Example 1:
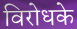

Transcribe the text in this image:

विरोधके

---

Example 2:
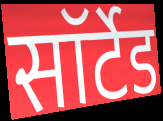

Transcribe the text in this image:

सॉर्टेड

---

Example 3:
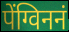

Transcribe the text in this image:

पेंग्विननं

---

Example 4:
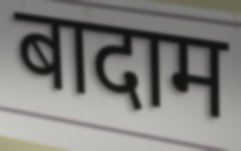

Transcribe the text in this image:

बादाम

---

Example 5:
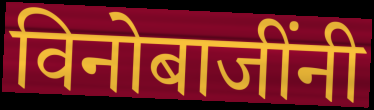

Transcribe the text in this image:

विनोबाजींनी